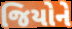
જિયોને